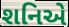
શનિએ